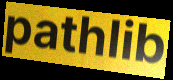
pathlib